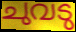
ചുവടു